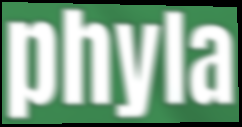
phyla